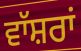
ਵਾੱਸ਼ਰਾਂ